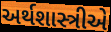
અર્થશાસ્ત્રીએ